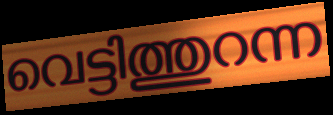
വെട്ടിത്തുറന്ന